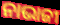
ନାଭାଜୀ